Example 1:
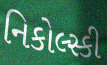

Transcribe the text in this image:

નિકોલ્સ્કી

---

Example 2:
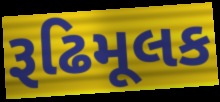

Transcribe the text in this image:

રૂઢિમૂલક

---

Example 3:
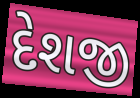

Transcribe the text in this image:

દેશજી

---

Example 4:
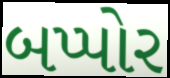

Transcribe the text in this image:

બપ્પોર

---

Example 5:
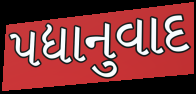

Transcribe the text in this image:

પદ્યાનુવાદ